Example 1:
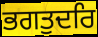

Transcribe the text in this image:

ਭਗਤੁਦਰਿ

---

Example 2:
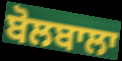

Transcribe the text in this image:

ਬੋਲਬਾਲਾ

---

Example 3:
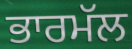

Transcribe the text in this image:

ਭਾਰਮੱਲ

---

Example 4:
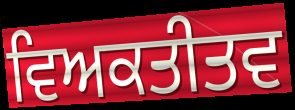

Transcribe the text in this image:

ਵਿਅਕਤੀਤਵ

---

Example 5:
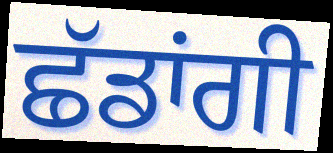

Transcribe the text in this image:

ਛੱਡਾਂਗੀ